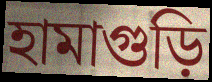
হামাগুড়ি